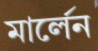
মার্লেন